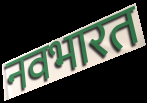
नवभारत